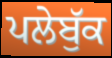
ਪਲੇਬੁੱਕ